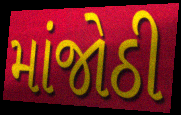
માંજોઠી